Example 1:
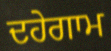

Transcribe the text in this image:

ਦਹੇਗਾਮ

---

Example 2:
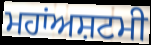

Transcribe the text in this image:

ਮਹਾਂਅਸ਼ਟਮੀ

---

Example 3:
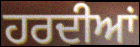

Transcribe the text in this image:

ਹਰਦੀਆਂ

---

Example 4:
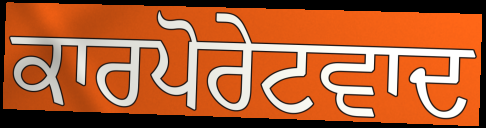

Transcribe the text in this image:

ਕਾਰਪੋਰੇਟਵਾਦ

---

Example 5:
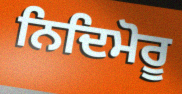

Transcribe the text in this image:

ਨਿਦਿਮੋਰੂ